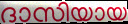
ദാസിയായ